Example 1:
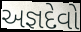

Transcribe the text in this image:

અજ્ઞદેવો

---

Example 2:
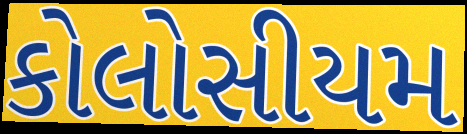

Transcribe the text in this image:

કોલોસીયમ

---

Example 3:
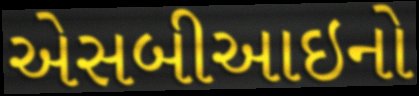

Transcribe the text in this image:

એસબીઆઇનો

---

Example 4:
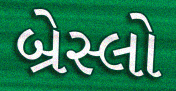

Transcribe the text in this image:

બ્રેસ્લો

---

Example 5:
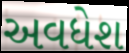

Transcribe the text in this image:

અવધેશ